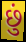
છું